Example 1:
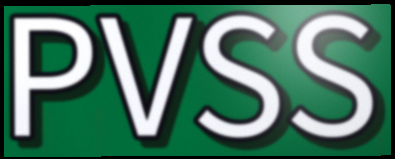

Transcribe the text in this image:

PVSS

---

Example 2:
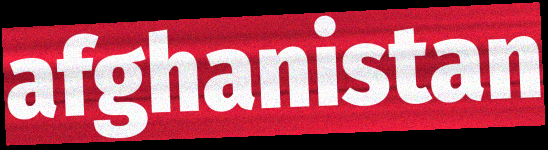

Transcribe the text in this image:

afghanistan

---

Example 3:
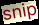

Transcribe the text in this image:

snip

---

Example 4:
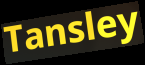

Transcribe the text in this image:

Tansley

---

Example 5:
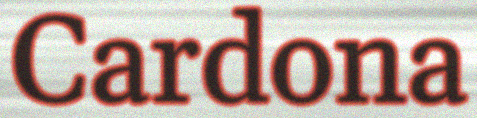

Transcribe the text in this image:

Cardona